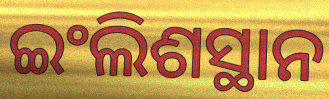
ଇଂଲିଶସ୍ଥାନ